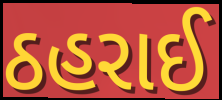
ઠહરાઈ